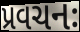
પ્રવચનઃ